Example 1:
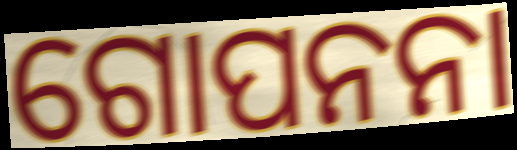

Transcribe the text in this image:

ଗୋପନନା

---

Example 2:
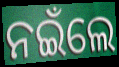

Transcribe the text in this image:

ନଇଁଲେ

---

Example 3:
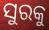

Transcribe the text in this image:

ସୁରକୁ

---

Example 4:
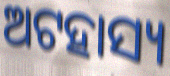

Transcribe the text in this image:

ଅଟହାସ୍ୟ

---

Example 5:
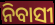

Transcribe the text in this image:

ନିବାସୀ